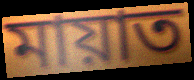
মায়াত